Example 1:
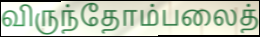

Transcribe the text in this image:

விருந்தோம்பலைத்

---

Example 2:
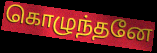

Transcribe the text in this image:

கொழுந்தனே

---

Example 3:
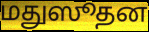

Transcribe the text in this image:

மதுஸூதன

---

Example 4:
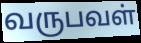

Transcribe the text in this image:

வருபவள்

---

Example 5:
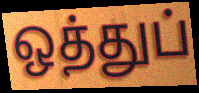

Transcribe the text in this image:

ஒத்துப்